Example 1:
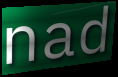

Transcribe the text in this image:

nad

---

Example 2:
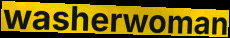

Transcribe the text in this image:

washerwoman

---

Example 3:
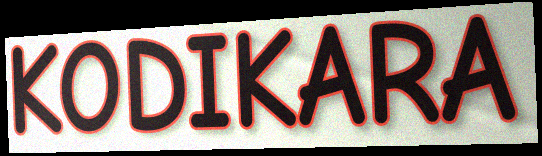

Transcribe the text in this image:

KODIKARA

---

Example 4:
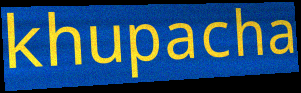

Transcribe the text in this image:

khupacha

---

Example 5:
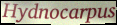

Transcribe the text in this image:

Hydnocarpus